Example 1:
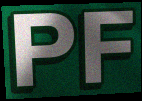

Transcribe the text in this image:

PF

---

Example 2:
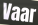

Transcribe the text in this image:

Vaar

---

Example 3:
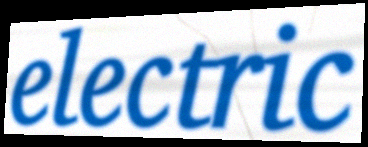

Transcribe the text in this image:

electric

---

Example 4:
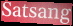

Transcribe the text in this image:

Satsang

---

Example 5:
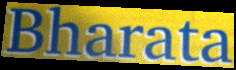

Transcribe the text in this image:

Bharata